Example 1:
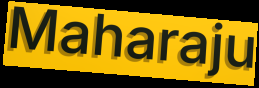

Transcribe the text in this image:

Maharaju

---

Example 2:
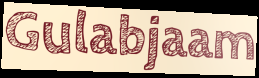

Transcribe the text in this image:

Gulabjaam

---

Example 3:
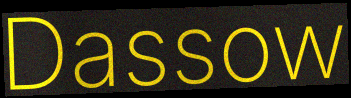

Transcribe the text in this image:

Dassow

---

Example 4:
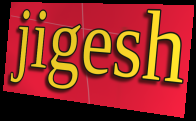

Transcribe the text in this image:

jigesh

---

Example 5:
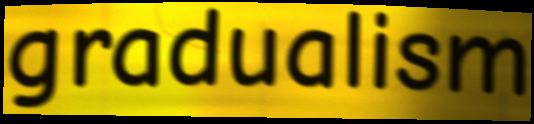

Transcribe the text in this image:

gradualism